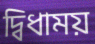
দ্বিধাময়